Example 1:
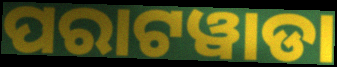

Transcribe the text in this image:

ପରାଟୱାଡା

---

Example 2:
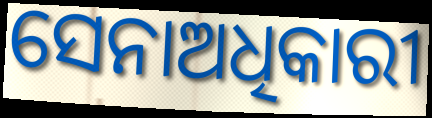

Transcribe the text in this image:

ସେନାଅଧିକାରୀ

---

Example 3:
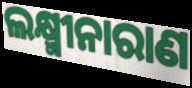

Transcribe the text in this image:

ଲକ୍ଷ୍ମୀନାରାଣ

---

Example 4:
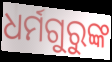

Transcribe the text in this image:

ଧର୍ମଗୁରୁଙ୍କ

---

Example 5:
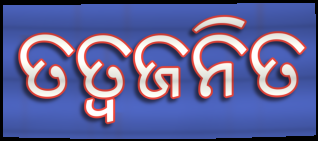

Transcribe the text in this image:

ତତ୍ଵଜନିତ